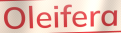
Oleifera